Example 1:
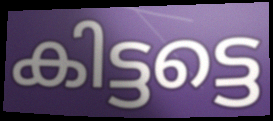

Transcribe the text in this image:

കിട്ടട്ടെ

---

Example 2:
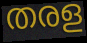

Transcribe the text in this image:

തരള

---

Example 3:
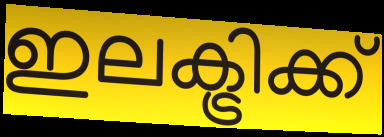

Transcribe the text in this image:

ഇലക്ട്രിക്ക്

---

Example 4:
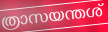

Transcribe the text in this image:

ത്രാസയന്തശ്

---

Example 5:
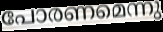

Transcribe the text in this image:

പോരണമെന്നു